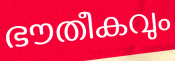
ഭൗതീകവും